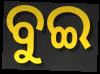
ବୁଇ